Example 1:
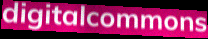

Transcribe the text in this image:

digitalcommons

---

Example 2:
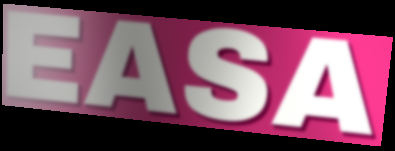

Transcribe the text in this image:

EASA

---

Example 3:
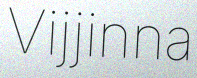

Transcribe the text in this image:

Vijjinna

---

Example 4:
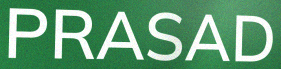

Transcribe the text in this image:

PRASAD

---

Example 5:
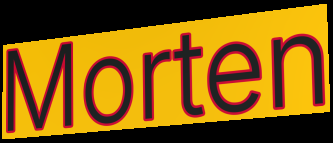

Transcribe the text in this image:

Morten